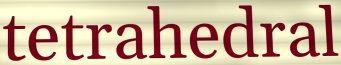
tetrahedral